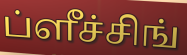
ப்ளீச்சிங்